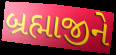
બ્રહ્માજીને